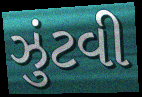
ઝુંટવી